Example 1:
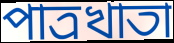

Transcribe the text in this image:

পাত্রখাতা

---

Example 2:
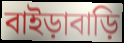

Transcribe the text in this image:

বাইড়াবাড়ি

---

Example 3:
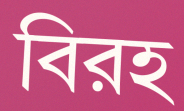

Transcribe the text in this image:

বিরহ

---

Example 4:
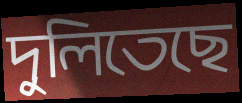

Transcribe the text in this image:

দুলিতেছে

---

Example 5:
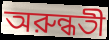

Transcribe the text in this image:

অরুন্ধতী